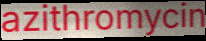
azithromycin